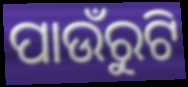
ପାଉଁରୁଟି